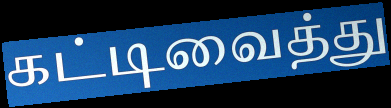
கட்டிவைத்து